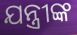
ଯନ୍ତ୍ରୀଙ୍କ